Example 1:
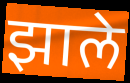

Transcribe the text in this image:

झाले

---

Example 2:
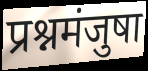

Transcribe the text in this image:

प्रश्नमंजुषा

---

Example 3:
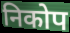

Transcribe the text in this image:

निकोप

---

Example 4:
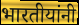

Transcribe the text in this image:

भारतीयांनी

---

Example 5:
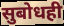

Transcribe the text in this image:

सुबोधही